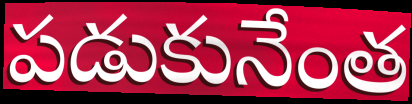
పడుకునేంత